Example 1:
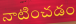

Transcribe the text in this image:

నాటించడం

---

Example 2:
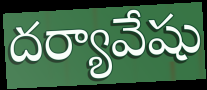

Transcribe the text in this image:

దర్యావేషు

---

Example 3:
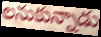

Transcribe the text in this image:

లనుకున్నాడు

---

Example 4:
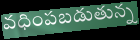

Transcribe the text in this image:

వధింపబడుతున్న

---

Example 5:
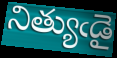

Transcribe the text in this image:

నిత్యుఁడై